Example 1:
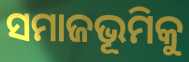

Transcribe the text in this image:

ସମାଜଭୂମିକୁ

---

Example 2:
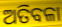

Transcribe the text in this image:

ଅତିବଳା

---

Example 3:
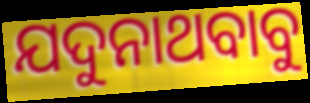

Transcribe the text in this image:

ଯଦୁନାଥବାବୁ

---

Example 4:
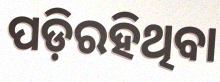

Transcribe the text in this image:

ପଡ଼ିରହିଥିବା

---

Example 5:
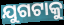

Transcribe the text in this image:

ଯୁଗଟାକୁ